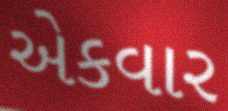
એકવાર